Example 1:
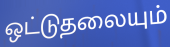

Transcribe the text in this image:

ஒட்டுதலையும்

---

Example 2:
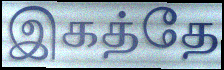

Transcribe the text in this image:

இகத்தே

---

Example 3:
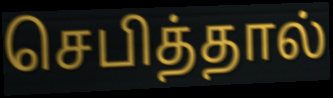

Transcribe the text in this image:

செபித்தால்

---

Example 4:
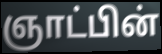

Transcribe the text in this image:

ஞாட்பின்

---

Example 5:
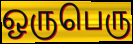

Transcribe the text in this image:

ஒருபெரு